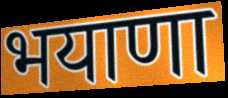
भयाणा